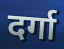
दर्गा